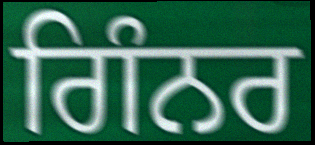
ਗਿੰਨਰ